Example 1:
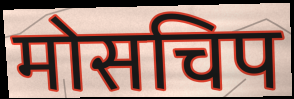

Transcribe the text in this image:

मोसचिप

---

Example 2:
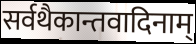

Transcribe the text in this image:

सर्वथैकान्तवादिनाम्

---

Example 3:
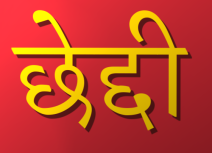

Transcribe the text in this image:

छेद्दी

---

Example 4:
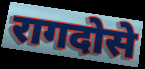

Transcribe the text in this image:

रागदोसे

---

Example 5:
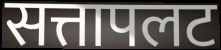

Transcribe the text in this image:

सत्तापलट